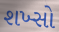
શખ્સો